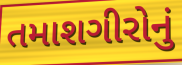
તમાશગીરોનું